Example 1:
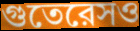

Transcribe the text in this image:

গুতেরেসও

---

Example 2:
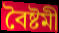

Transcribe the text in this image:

বৈষ্টমী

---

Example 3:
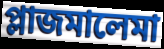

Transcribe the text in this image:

প্লাজমালেমা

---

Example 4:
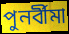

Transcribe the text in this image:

পুনর্বীমা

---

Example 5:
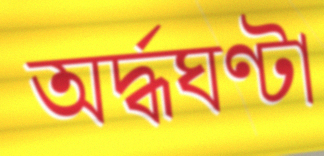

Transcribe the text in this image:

অর্দ্ধঘণ্টা